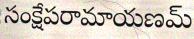
సంక్షేపరామాయణమ్